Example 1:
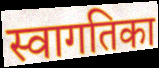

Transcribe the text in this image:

स्वागतिका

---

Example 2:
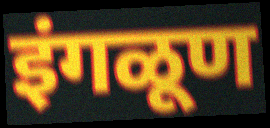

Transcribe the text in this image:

इंगळूण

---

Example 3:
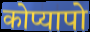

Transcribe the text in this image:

कोप्यापो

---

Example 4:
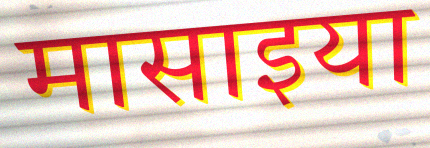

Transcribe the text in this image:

मासाइया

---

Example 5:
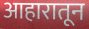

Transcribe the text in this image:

आहारातून